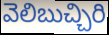
వెలిబుచ్చిరి